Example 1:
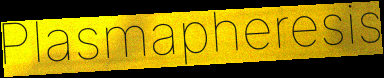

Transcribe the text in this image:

Plasmapheresis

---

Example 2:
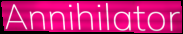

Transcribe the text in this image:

Annihilator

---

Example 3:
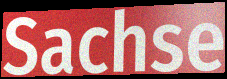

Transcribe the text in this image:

Sachse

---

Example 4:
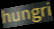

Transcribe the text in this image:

hungri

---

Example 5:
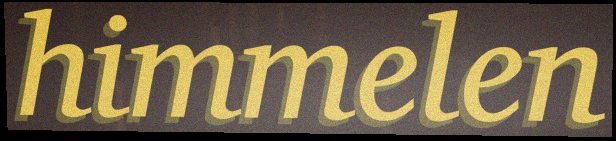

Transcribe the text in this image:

himmelen